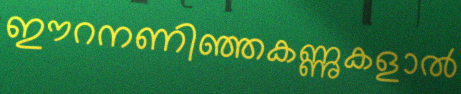
ഈറനണിഞ്ഞകണ്ണുകളാൽ